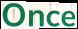
Once